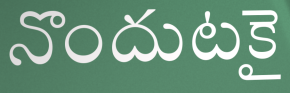
నొందుటకై